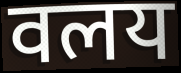
वलय